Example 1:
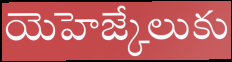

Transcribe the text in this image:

యెహెజ్కేలుకు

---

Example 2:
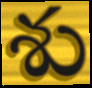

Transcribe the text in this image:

శు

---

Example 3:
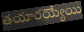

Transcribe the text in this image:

తయారయ్యేయి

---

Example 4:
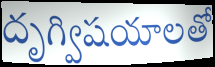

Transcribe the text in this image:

దృగ్విషయాలతో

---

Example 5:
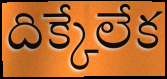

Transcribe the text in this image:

దిక్కేలేక